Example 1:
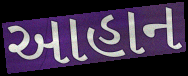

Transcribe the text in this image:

આહાન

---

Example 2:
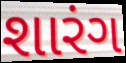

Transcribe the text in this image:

શારંગ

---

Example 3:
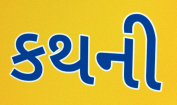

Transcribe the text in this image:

કથની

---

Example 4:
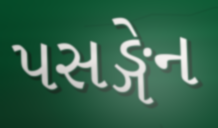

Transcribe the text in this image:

પસઙ્ગેન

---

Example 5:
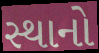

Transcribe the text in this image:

સ્થાનો